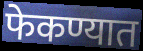
फेकण्यात